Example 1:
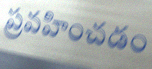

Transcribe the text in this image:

ప్రవహించడం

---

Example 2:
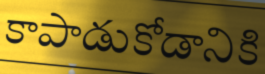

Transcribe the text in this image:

కాపాడుకోడానికి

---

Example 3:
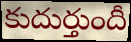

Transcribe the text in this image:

కుదుర్తుందీ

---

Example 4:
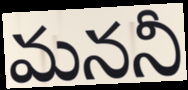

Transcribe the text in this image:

మననీ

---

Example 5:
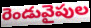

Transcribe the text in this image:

రెండువైపుల